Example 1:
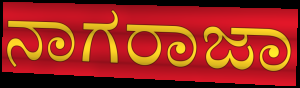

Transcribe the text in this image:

ನಾಗರಾಜಾ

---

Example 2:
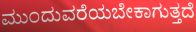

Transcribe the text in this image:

ಮುಂದುವರೆಯಬೇಕಾಗುತ್ತದೆ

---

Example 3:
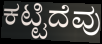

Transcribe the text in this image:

ಕಟ್ಟಿದೆವು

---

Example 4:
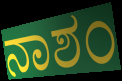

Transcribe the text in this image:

ನಾಶಂ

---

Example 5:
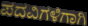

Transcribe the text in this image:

ಪದವಿಗಳಿಗಾಗಿ